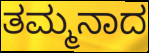
ತಮ್ಮನಾದ